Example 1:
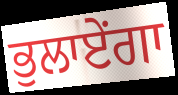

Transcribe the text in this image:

ਭੁਲਾਏਂਗਾ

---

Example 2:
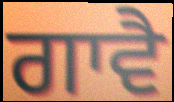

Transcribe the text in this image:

ਗਾਵੈ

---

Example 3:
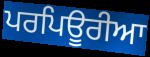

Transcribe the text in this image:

ਪਰਪਿਊਰੀਆ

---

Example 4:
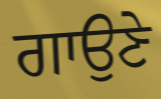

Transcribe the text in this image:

ਗਾਉਣੇ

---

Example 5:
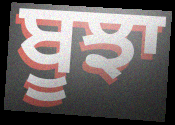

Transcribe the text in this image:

ਬੂਝਾ